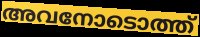
അവനോടൊത്ത്